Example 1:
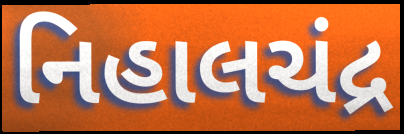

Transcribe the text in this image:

નિહાલચંદ્ર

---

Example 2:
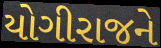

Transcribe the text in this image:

યોગીરાજને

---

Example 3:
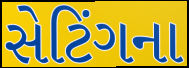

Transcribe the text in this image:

સેટિંગના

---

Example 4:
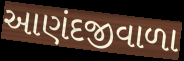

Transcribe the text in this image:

આણંદજીવાળા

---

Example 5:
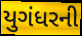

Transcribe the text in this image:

યુગંધરની